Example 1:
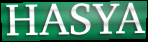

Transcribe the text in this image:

HASYA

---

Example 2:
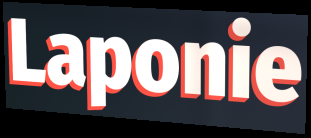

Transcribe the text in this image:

Laponie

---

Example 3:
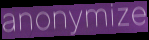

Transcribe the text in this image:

anonymize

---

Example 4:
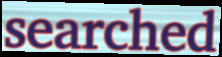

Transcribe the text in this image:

searched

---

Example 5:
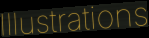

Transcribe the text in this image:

Illustrations